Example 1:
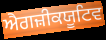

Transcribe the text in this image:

ਐਗਜ਼ੀਕਯੂਟਿਵ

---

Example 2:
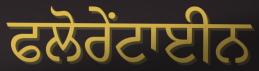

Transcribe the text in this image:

ਫਲੋਰੇਂਟਾਈਨ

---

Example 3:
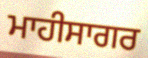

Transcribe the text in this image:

ਮਾਹੀਸਾਗਰ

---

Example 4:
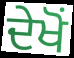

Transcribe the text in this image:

ਦੇਖੋਂ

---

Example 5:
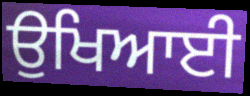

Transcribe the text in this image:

ਉਖਿਆਈ